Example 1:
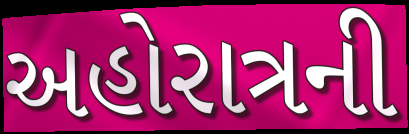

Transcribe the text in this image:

અહોરાત્રની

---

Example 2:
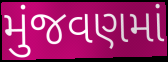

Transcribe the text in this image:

મુંજવણમાં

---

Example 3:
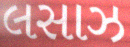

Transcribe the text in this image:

લસાઝ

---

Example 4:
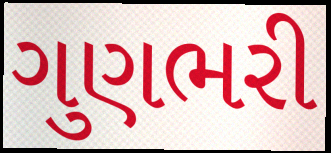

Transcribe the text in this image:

ગુણભરી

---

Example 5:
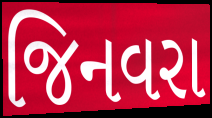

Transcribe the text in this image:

જિનવરા